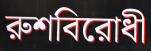
রুশবিরোধী